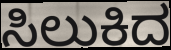
ಸಿಲುಕಿದ